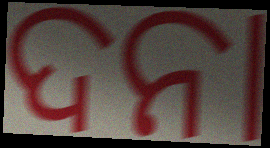
ଦନା